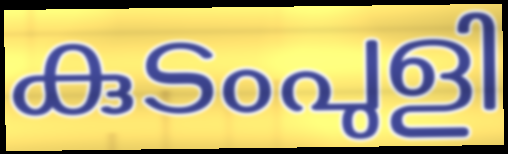
കുടംപുളി